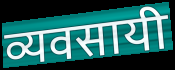
व्यवसायी